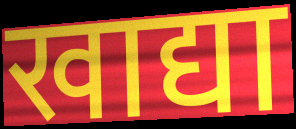
खाद्या